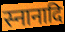
स्नानादि